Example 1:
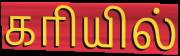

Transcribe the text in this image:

கரியில்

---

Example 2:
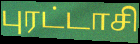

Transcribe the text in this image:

புரட்டாசி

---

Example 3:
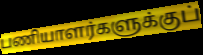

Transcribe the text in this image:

பணியாளர்களுக்குப்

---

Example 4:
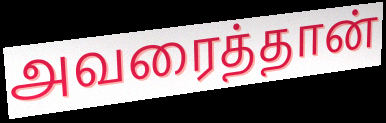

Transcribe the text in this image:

அவரைத்தான்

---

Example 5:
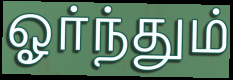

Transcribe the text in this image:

ஓர்ந்தும்